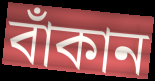
বাঁকান